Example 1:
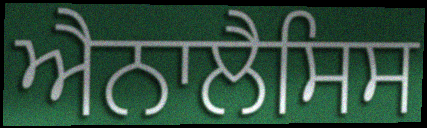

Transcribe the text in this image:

ਐਨਾਲੈਸਿਸ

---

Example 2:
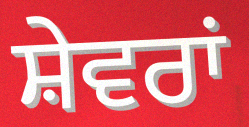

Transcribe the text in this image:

ਸ਼ੇਵਰਾਂ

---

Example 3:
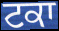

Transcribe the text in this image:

ਟਕਾ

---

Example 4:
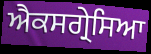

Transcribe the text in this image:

ਐਕਸਗ੍ਰੇਸਿਆ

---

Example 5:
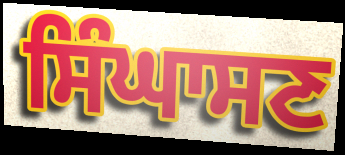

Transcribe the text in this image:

ਸਿੰਘਾਸਣ